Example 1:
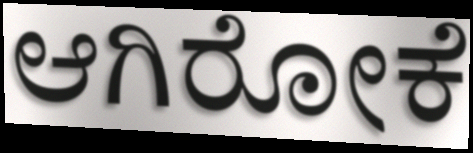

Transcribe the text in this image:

ಆಗಿರೋಕೆ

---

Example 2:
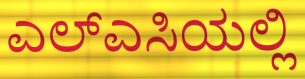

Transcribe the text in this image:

ಎಲ್ಎಸಿಯಲ್ಲಿ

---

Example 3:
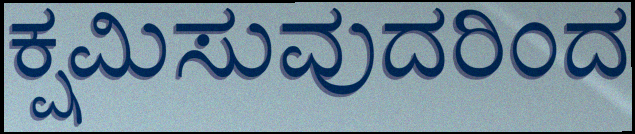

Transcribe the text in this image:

ಕ್ಷಮಿಸುವುದರಿಂದ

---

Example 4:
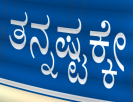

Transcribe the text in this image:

ತನ್ನಷ್ಟಕ್ಕೇ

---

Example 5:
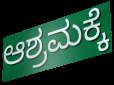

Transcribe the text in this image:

ಆಶ್ರಮಕ್ಕೆ